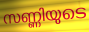
സണ്ണിയുടെ